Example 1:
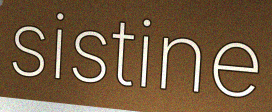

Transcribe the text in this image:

sistine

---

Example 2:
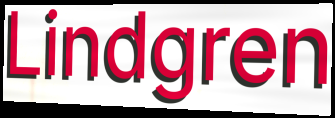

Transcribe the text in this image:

Lindgren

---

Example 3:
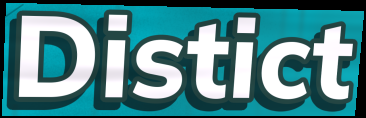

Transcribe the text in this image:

Distict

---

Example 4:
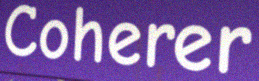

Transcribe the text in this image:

Coherer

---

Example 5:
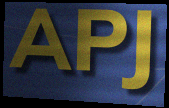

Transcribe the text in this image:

APJ